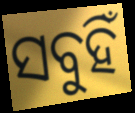
ସବୁହିଁ